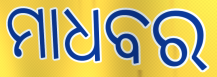
ମାଧବର